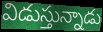
విడుస్తున్నాడు